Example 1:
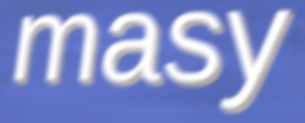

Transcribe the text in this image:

masy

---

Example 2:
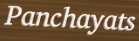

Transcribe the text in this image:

Panchayats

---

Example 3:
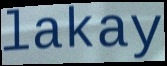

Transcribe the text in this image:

lakay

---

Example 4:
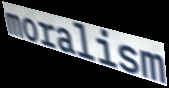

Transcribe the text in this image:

moralism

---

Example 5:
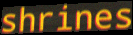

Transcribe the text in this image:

shrines